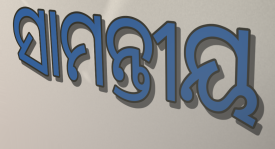
ସାମନ୍ତୀୟ